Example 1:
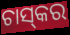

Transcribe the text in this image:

ଚାସ୍‌କର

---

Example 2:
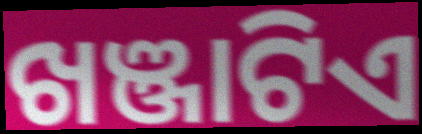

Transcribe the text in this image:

ଖଞ୍ଜାଟିଏ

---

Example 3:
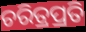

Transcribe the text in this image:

ଚରିତ୍ରପ୍ରତି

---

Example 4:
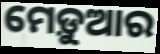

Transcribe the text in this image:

ମେଡ଼ୁଆର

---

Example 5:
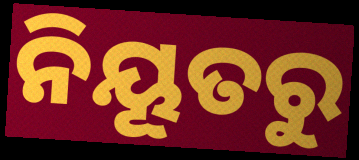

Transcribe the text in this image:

ନିୟୂତରୁ